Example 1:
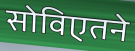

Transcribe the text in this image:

सोविएतने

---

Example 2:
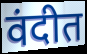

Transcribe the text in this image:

वंदीत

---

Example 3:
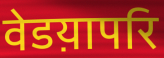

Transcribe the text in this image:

वेडय़ापरि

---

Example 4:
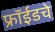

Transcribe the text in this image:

फ्रॉईडचे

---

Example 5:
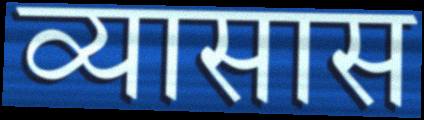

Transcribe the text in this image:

व्यासास